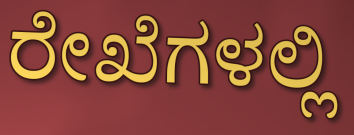
ರೇಖೆಗಳಲ್ಲಿ